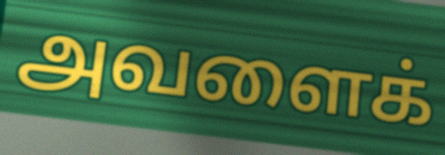
அவளைக்